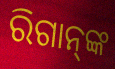
ରିଗାନ୍‌ଙ୍କ